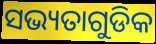
ସଭ୍ୟତାଗୁଡିକ